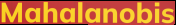
Mahalanobis